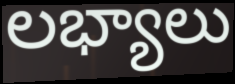
లభ్యాలు